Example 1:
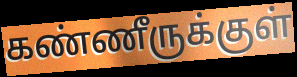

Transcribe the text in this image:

கண்ணீருக்குள்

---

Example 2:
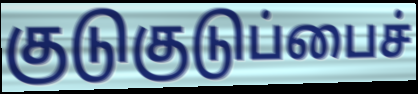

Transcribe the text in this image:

குடுகுடுப்பைச்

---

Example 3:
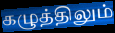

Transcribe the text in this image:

கழுத்திலும்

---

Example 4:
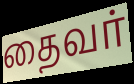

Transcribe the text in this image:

தைவர்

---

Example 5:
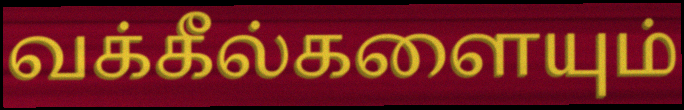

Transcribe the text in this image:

வக்கீல்களையும்